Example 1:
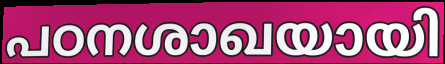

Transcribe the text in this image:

പഠനശാഖയായി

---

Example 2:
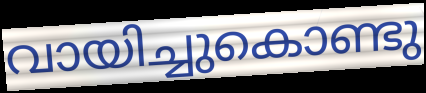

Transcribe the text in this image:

വായിച്ചുകൊണ്ടു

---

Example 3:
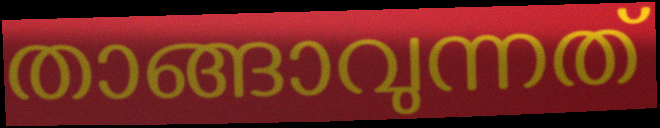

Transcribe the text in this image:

താങ്ങാവുന്നത്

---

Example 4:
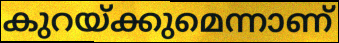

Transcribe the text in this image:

കുറയ്ക്കുമെന്നാണ്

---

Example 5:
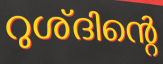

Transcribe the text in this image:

റുശ്ദിന്റെ